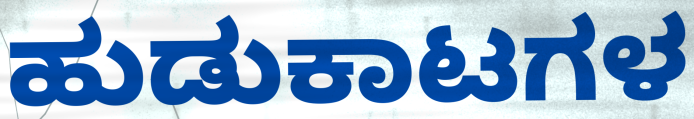
ಹುಡುಕಾಟಗಳ